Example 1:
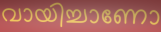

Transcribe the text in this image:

വായിച്ചാണോ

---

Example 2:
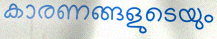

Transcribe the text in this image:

കാരണങ്ങളുടെയും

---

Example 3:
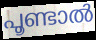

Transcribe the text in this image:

പൂണ്ടാൽ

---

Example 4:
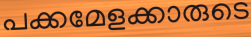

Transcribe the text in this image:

പക്കമേളക്കാരുടെ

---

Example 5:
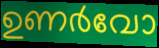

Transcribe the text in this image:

ഉണർവോ